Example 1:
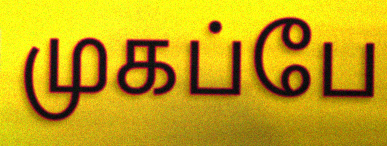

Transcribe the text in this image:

முகப்பே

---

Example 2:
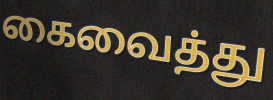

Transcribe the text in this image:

கைவைத்து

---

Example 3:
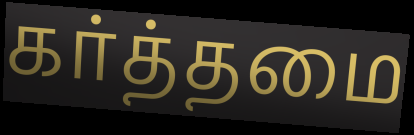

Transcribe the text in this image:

கர்த்தமை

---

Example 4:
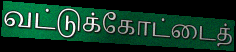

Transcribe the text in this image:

வட்டுக்கோட்டைத்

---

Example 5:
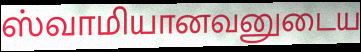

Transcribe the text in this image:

ஸ்வாமியானவனுடைய